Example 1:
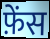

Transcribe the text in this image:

फ़ेंस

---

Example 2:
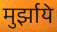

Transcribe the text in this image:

मुर्झाये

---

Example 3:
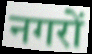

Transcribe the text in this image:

नगरों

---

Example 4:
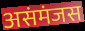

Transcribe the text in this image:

असंमंजस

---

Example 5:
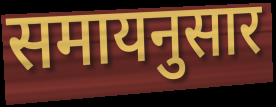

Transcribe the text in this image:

समायनुसार